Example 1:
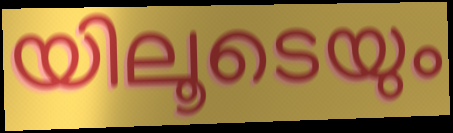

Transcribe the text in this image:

യിലൂടെയും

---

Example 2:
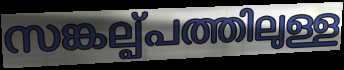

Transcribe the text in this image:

സങ്കല്പ്പത്തിലുള്ള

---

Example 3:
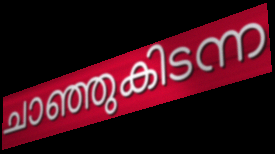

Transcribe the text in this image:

ചാഞ്ഞുകിടന്ന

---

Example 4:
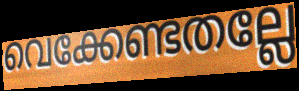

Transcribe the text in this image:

വെക്കേണ്ടതല്ലേ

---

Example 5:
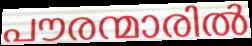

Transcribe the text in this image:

പൗരന്മാരിൽ